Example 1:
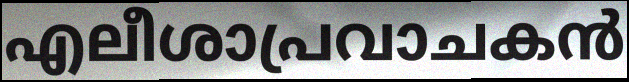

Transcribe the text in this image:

എലീശാപ്രവാചകൻ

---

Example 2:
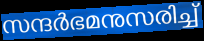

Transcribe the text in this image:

സന്ദർഭമനുസരിച്ച്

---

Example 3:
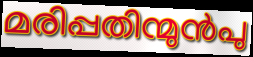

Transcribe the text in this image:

മരിപ്പതിന്മുൻപു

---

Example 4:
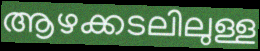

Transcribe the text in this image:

ആഴക്കടലിലുള്ള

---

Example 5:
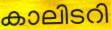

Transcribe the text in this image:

കാലിടറി